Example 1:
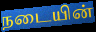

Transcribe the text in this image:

நடையின்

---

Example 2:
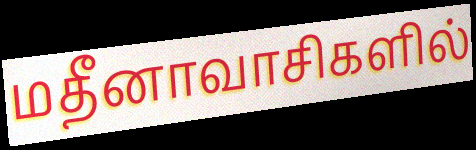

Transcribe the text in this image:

மதீனாவாசிகளில்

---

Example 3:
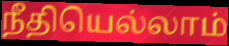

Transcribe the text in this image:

நீதியெல்லாம்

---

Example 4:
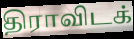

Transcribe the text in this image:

திராவிடக்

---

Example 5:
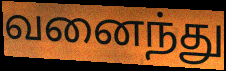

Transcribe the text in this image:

வனைந்து